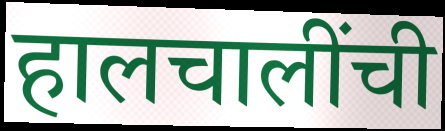
हालचालींची